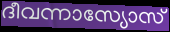
ദീവന്നാസ്യോസ്